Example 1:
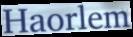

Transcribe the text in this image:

Haorlem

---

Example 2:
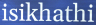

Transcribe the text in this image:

isikhathi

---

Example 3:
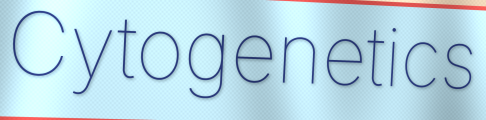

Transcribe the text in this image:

Cytogenetics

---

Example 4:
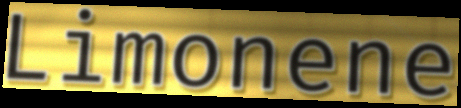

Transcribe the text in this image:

Limonene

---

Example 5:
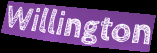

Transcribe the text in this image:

Willington